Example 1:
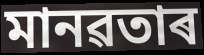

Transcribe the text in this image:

মানৱতাৰ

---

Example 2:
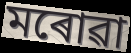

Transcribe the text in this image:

মৰোৱা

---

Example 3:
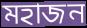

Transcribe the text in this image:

মহাজন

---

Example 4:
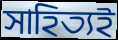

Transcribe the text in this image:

সাহিত্যই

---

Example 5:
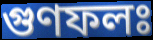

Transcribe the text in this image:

গুণফলঃ